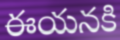
ఈయనకి